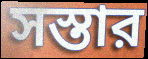
সস্তার